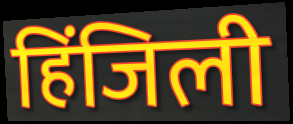
हिंजिली